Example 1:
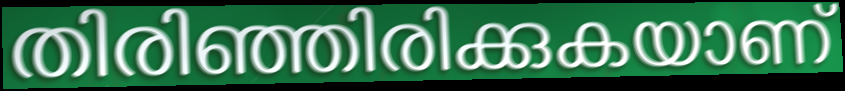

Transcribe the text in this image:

തിരിഞ്ഞിരിക്കുകയാണ്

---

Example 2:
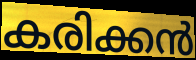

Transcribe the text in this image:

കരിക്കൻ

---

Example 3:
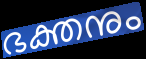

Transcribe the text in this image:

ഭക്തനും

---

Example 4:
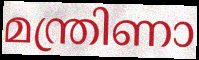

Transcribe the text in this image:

മന്ത്രിണാ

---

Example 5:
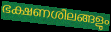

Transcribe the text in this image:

ഭക്ഷണശീലങ്ങളും